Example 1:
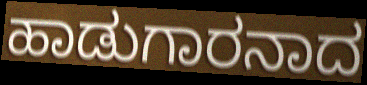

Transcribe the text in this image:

ಹಾಡುಗಾರನಾದ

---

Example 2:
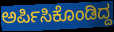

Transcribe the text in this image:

ಅರ್ಪಿಸಿಕೊಂಡಿದ್ದ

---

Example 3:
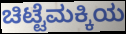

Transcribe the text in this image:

ಚಿಟ್ಟೆಮಕ್ಕಿಯ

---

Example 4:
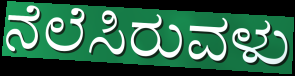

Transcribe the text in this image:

ನೆಲೆಸಿರುವಳು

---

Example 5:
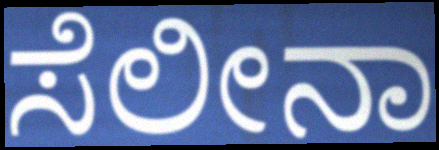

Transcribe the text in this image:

ಸೆಲೀನಾ